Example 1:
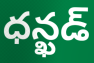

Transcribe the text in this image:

ధన్ఖడ్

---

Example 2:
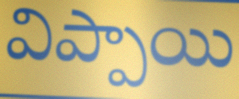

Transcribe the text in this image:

విప్పాయి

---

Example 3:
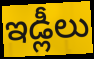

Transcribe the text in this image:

ఇడ్లీలు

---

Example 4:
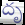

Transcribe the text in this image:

దృ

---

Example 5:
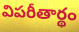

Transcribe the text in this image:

విపరీతార్థం